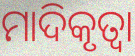
ମାଦିକୃତ୍ୱା